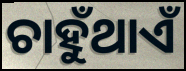
ଚାହୁଁଥାଏଁ